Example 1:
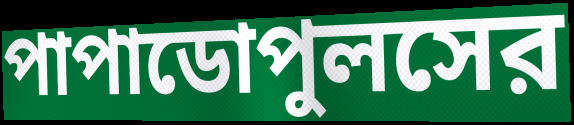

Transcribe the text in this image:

পাপাডোপুলসের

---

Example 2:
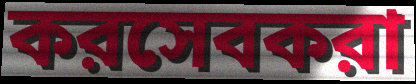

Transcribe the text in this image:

করসেবকরা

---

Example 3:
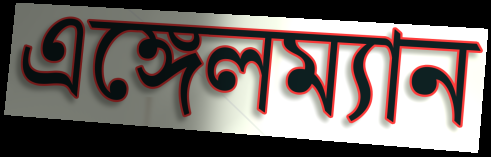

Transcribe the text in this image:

এঙ্গেলম্যান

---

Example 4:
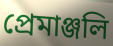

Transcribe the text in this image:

প্রেমাঞ্জলি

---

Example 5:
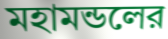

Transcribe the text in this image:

মহামন্ডলের